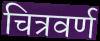
चित्रवर्ण